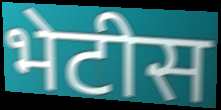
भेटीस